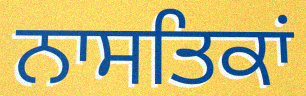
ਨਾਸਤਿਕਾਂ